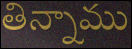
తిన్నాము